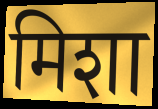
मिशा